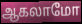
ஆகலாமோ